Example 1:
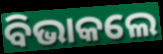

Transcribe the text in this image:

ବିଭାକଲେ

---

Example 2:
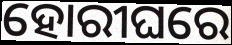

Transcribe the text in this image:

ହୋରୀଘରେ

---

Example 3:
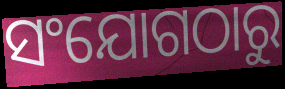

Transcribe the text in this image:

ସଂଯୋଗଠାରୁ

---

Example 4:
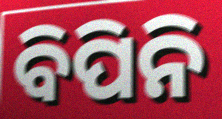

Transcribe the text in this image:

ବିପିନି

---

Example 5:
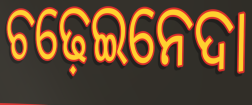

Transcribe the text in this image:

ଚଢ଼େଇନେଦା